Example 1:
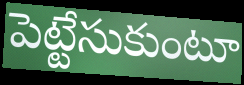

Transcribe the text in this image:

పెట్టేసుకుంటూ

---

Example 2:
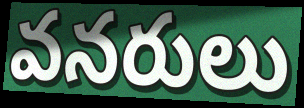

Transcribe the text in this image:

వనరులు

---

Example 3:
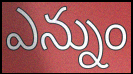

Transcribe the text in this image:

ఎన్నుం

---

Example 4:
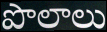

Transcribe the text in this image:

పొలాలు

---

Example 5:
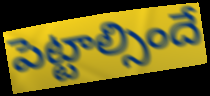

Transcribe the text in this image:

పెట్టాల్సిందే